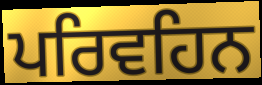
ਪਰਿਵਹਿਨ